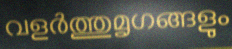
വളർത്തുമൃഗങ്ങളും